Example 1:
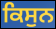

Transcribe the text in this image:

ਕਿਸੁਨ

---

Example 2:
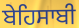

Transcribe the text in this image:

ਬੇਹਿਸਾਬੀ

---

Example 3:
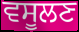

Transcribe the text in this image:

ਵਸੂਲਣ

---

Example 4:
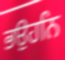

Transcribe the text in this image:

ਭਉਹਨਿ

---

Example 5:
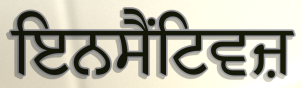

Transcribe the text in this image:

ਇਨਸੈਂਟਿਵਜ਼